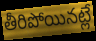
తీరిపోయినట్లే